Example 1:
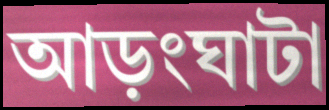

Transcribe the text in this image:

আড়ংঘাটা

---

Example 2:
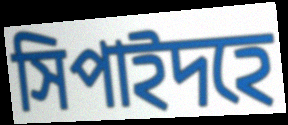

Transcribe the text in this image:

সিপাইদহে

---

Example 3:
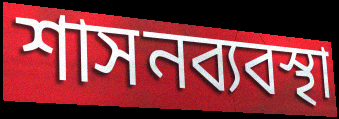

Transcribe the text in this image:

শাসনব্যবস্থা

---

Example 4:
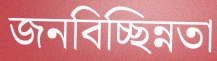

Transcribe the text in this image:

জনবিচ্ছিন্নতা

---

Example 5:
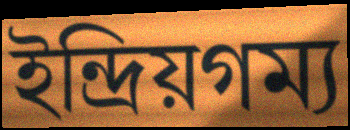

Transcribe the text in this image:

ইন্দ্রিয়গম্য